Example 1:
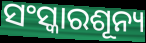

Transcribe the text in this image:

ସଂସ୍କାରଶୂନ୍ୟ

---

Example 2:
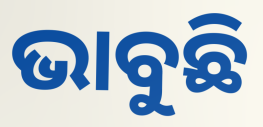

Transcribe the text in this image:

ଭାବୁଛି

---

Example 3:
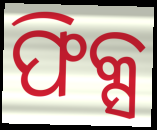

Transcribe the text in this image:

ଫିକ୍ସ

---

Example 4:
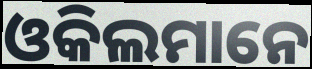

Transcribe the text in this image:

ଓକିଲମାନେ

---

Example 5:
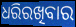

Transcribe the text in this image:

ଧରିରଖିବାର